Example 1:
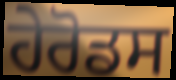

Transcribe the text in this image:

ਹੇਰੋਡਸ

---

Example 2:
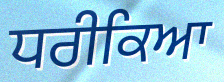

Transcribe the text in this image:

ਧਰੀਕਿਆ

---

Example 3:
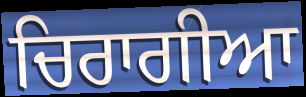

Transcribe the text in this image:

ਚਿਰਾਗੀਆ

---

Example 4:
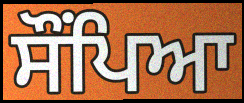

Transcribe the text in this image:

ਸੌਂਪਿਆ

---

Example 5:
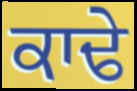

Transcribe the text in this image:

ਕਾਢੇ